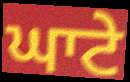
ਘਾਟੇ